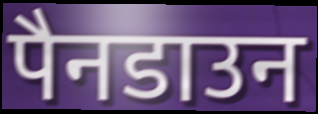
पैनडाउन